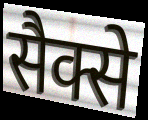
सैक्से